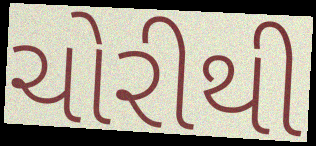
ચોરીથી